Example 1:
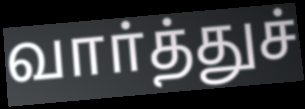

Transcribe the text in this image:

வார்த்துச்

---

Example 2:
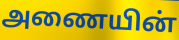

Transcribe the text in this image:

அணையின்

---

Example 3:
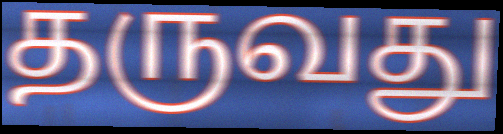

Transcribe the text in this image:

தருவது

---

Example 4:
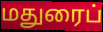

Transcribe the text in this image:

மதுரைப்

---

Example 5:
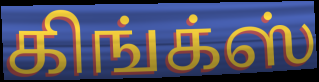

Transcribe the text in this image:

கிங்க்ஸ்